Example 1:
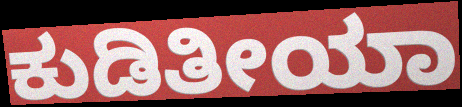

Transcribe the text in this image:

ಕುಡಿತೀಯಾ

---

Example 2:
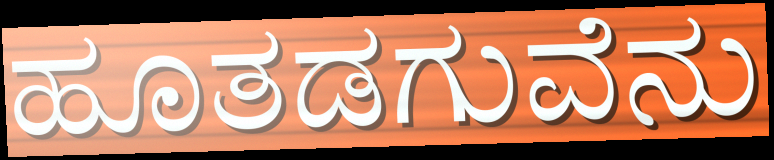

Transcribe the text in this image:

ಹೂತಡಗುವೆನು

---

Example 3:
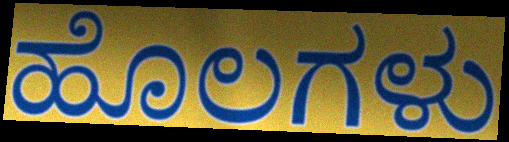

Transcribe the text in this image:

ಹೊಲಗಳು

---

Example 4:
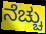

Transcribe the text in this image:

ನೆಚ್ಚು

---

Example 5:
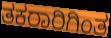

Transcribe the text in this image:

ತಕರಾರಿಗಿಂತ